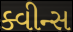
ક્વીન્સ